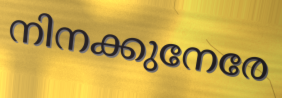
നിനക്കുനേരേ